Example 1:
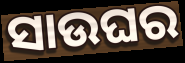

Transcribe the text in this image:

ସାଉଘର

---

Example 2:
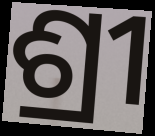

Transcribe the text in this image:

ଶ୍ରୀ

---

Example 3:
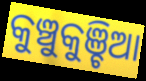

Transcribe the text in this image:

କୁଞ୍ଚୁକୁଞ୍ଚିଆ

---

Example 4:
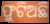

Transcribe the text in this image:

ଫୁଟିଅଛି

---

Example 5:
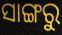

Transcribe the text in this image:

ସାଙ୍ଗରୁ